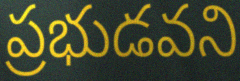
ప్రభుడవని